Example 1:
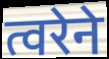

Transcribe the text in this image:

त्वरेने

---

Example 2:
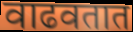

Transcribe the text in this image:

वाढवतात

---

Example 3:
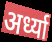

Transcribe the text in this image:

अर्ध्या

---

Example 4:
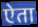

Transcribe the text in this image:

ऐता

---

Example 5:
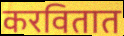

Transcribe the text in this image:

करवितात